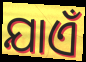
ଯାଏଁ